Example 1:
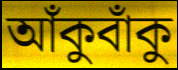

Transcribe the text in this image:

আঁকুবাঁকু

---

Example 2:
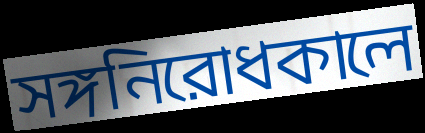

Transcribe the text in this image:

সঙ্গনিরোধকালে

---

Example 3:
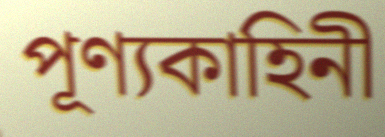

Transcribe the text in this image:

পূণ্যকাহিনী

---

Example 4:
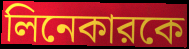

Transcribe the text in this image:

লিনেকারকে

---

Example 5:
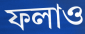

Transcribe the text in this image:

ফলাও